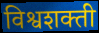
विश्वशक्ती